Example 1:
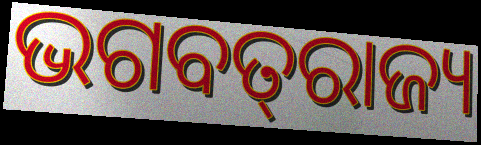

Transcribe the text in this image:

ଭଗବତ୍‌ରାଜ୍ୟ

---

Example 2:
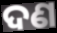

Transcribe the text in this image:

ଦଣ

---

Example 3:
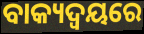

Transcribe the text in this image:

ବାକ୍ୟଦ୍ଵୟରେ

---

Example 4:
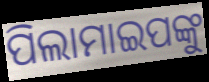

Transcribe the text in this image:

ପିଲାମାଇପଙ୍କୁ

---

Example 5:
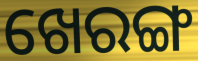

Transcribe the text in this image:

ଖେରଙ୍ଗ